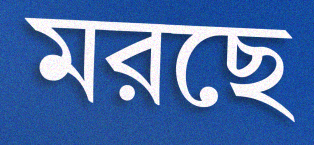
মরছে